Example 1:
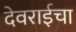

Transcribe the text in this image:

देवराईचा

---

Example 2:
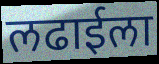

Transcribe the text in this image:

लढाईला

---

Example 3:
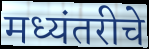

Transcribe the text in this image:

मध्यंतरीचे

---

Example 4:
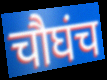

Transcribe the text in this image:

चौघंच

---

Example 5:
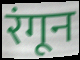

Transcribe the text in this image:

रंगून